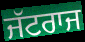
ਜੱਟਰਾਜ